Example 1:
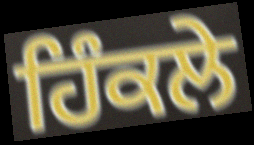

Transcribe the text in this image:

ਹਿੰਕਲੇ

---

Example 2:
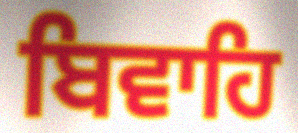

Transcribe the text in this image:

ਬਿਵਾਹਿ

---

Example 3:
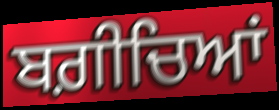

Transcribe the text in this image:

ਬਗ਼ੀਚਿਆਂ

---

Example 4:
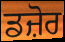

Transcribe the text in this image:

ਡਜ਼ੋਰ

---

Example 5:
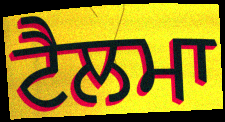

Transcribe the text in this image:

ਟੈਲਮਾ